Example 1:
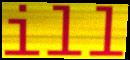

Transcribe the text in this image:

ill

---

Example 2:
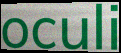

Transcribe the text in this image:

oculi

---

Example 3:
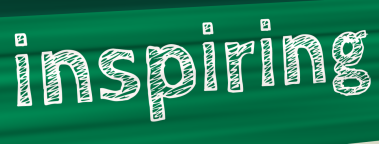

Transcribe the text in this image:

inspiring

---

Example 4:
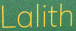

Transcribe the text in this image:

Lalith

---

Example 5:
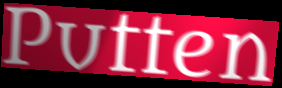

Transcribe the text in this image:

Putten